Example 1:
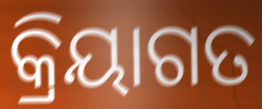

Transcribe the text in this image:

କ୍ରିୟାଗତ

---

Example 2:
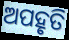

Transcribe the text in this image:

ଅପହୃତି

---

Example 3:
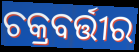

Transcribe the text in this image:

ଚକ୍ରବର୍ତ୍ତୀର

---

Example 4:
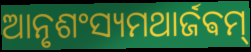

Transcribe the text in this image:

ଆନୃଶଂସ୍ୟମଥାର୍ଜଵମ୍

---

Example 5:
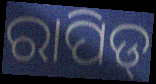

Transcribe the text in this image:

ରାପିଡ୍